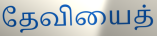
தேவியைத்